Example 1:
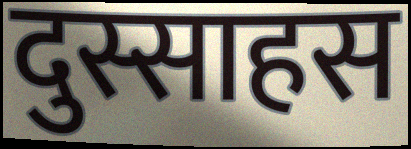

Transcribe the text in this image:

दुस्साहस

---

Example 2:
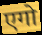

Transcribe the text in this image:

एगो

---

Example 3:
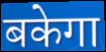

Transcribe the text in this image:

बकेगा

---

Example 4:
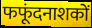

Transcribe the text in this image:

फफूंदनाशकों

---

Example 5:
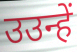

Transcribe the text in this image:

उउन्हें